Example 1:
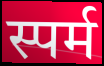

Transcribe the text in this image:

स्पर्म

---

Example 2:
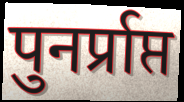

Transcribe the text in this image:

पुनर्प्राप्त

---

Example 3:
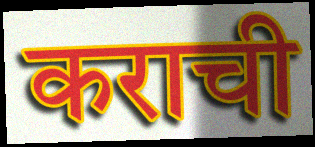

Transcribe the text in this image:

कराची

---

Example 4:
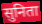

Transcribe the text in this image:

सुनिता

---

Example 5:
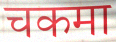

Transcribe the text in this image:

चकमा